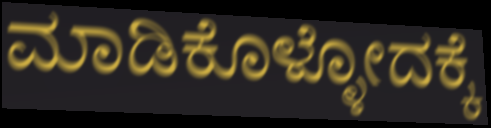
ಮಾಡಿಕೊಳ್ಳೋದಕ್ಕೆ